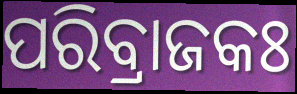
ପରିବ୍ରାଜକଃ